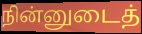
நின்னுடைத்